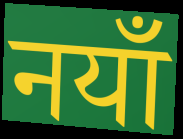
नयाँ